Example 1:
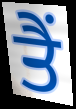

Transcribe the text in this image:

ਤੈਂ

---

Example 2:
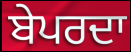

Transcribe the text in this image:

ਬੇਪਰਦਾ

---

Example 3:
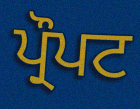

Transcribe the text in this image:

ਪ੍ਰੌਪਟ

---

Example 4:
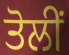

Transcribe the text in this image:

ਤੋਲੀਂ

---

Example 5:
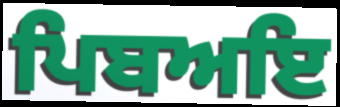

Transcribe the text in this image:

ਪਿਬਅਇ